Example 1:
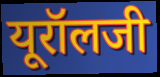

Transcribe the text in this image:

यूरॉलजी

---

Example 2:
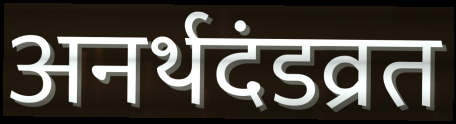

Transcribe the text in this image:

अनर्थदंडव्रत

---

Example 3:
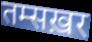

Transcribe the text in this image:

तम्सख़र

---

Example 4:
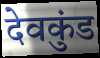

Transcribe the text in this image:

देवकुंड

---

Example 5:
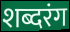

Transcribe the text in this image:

शब्दरंग